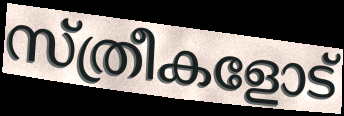
സ്ത്രീകളോട്